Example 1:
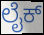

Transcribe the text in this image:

ಲೈಕ್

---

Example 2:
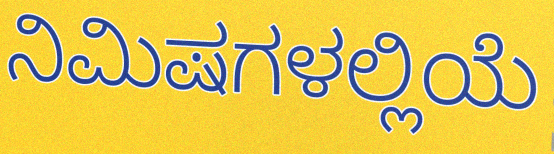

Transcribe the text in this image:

ನಿಮಿಷಗಳಲ್ಲಿಯೆ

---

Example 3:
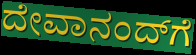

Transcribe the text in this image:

ದೇವಾನಂದ್‌ಗೆ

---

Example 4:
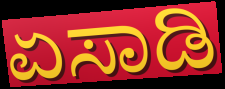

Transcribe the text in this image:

ಏಸಾಡಿ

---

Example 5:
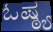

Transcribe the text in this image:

ಓಷ್ಠ್ಯ